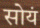
सोयं